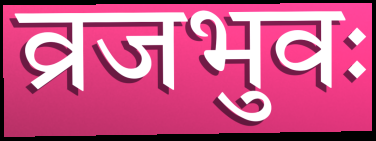
व्रजभुवः